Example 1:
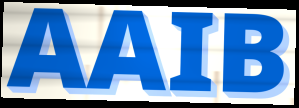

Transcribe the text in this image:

AAIB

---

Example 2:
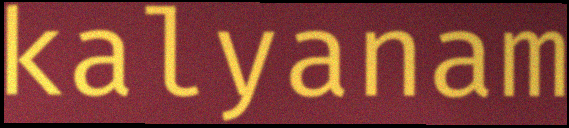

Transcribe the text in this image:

kalyanam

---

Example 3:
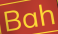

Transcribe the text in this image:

Bah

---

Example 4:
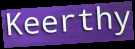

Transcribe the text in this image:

Keerthy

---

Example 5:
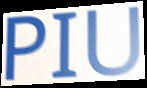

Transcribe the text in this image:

PIU